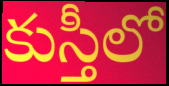
కుస్తీలో